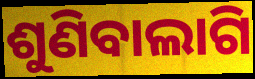
ଶୁଣିବାଲାଗି